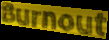
Burnout